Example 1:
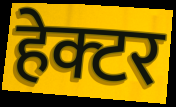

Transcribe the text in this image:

हेक्‍टर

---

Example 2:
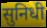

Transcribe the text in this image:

सुनिधी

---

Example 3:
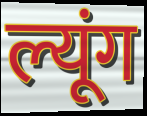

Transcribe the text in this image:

ल्यूंग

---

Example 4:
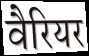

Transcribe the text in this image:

वैरियर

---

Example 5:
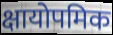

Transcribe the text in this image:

क्षायोपमिक